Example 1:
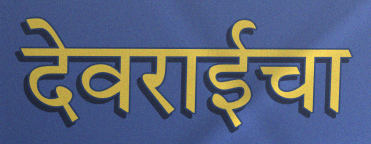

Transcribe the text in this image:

देवराईचा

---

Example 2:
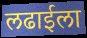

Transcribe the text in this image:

लढाईला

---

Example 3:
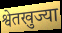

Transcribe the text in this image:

श्वेतखुज्या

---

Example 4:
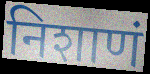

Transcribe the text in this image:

निशाणं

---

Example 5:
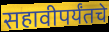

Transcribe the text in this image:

सहावीपर्यंतचे